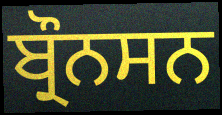
ਬ੍ਰੌਨਸਨ